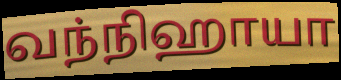
வந்நிஹாயா